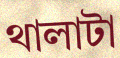
থালাটা